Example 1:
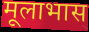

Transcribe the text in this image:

मूलाभास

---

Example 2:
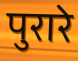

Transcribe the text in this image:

पुरारे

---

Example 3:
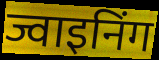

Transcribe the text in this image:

ज्वाइनिंग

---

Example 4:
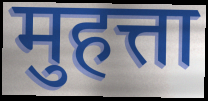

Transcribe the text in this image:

मुहत्ता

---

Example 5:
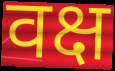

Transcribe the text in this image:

वक्ष